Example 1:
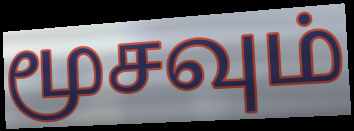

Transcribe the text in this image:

மூசவும்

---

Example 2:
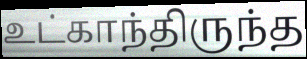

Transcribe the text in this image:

உட்காந்திருந்த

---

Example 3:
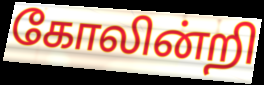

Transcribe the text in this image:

கோலின்றி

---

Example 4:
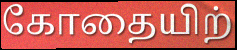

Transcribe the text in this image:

கோதையிற்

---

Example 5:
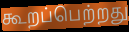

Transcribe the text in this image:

கூறப்பெற்றது